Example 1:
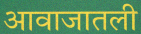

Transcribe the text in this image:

आवाजातली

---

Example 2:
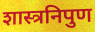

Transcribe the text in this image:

शास्त्रनिपुण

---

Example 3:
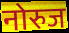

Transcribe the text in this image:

नोरुज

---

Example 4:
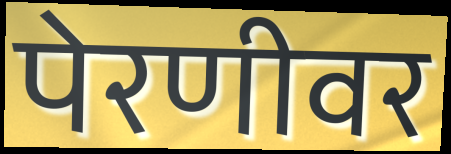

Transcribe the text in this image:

पेरणीवर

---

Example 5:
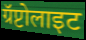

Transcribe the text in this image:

ग्रॅप्टोलाइट